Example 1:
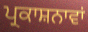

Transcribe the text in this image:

ਪ੍ਰਕਾਸ਼ਨਾਵਾਂ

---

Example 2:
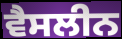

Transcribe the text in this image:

ਵੈਸਲੀਨ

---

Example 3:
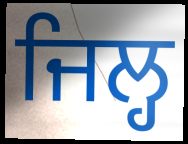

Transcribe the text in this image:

ਜਿਲ੍ਹ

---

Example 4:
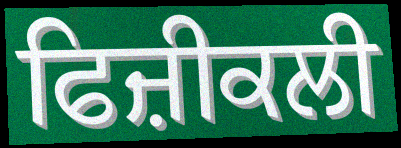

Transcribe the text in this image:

ਫਿਜ਼ੀਕਲੀ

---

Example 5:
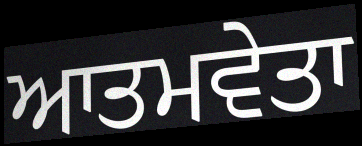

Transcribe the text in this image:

ਆਤਮਵੇਤਾ